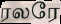
ரலரே